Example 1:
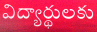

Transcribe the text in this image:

విద్యార్థులకు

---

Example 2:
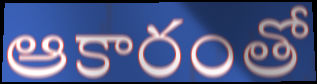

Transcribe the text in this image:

ఆకారంతో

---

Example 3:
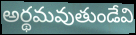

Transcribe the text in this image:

అర్థమవుతుండేవి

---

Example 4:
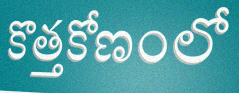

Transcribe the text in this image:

కొత్తకోణంలో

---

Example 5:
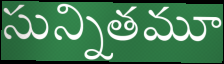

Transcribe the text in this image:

సున్నితమూ